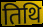
तिथि